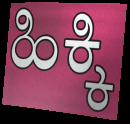
ಹಿಕ್ಕಿ